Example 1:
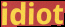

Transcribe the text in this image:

idiot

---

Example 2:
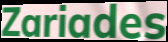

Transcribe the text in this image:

Zariades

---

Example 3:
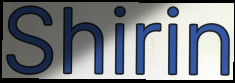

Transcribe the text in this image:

Shirin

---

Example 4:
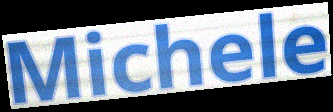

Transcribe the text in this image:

Michele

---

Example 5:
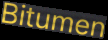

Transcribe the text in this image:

Bitumen